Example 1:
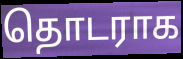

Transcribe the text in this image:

தொடராக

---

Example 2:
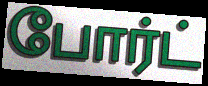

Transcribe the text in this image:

போர்ட்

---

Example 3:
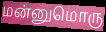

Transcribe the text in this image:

மன்னுமொரு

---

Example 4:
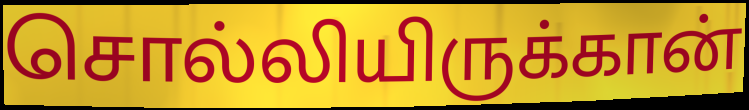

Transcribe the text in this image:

சொல்லியிருக்கான்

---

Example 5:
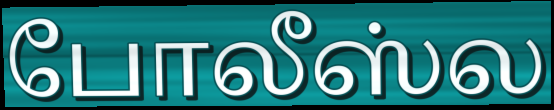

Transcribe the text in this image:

போலீஸ்ல